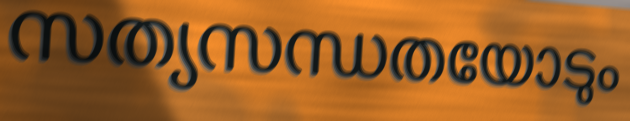
സത്യസന്ധതയോടും